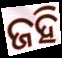
ଜହି